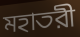
মহাতরী